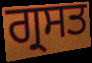
ਗ੍ਰਸਤ